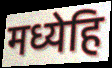
मध्येहि